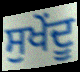
ਸੁਖੇਂਦੂ